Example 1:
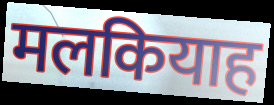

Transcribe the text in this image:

मलकियाह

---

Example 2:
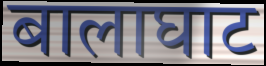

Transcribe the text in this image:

बालाघाट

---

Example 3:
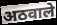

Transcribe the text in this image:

अठवाले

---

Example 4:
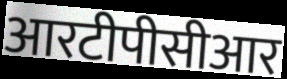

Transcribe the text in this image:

आरटीपीसीआर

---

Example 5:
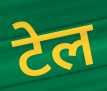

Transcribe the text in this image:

टेल